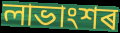
লাভাংশৰ